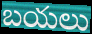
బయలు